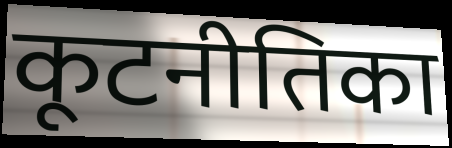
कूटनीतिका